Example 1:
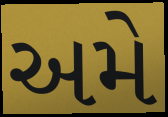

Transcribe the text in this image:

અમે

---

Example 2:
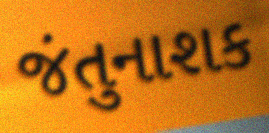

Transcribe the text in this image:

જંતુનાશક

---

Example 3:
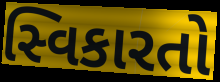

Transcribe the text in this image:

સ્વિકારતો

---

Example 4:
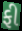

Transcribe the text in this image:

ફી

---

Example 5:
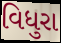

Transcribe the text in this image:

વિધુરા